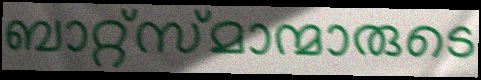
ബാറ്റ്സ്മാന്മാരുടെ